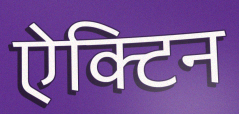
ऐक्टिन